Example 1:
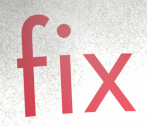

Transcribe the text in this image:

fix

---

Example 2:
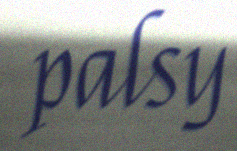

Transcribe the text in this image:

palsy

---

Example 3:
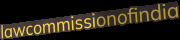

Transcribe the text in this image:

lawcommissionofindia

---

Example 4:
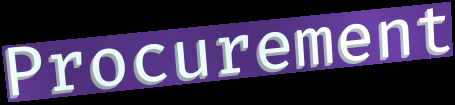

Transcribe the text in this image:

Procurement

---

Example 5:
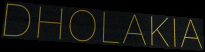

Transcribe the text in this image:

DHOLAKIA